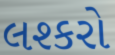
લશ્કરો